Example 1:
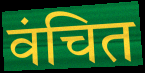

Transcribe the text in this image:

वंचित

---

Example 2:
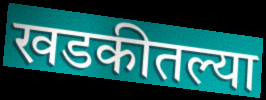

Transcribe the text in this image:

खडकीतल्या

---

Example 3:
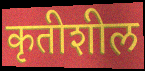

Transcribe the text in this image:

कृतीशील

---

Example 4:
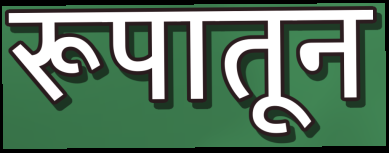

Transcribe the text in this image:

रूपातून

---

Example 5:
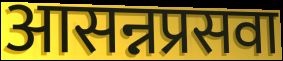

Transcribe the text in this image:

आसन्नप्रसवा